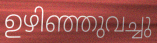
ഉഴിഞ്ഞുവച്ചു